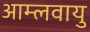
आम्लवायु